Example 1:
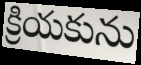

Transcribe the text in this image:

క్రియకును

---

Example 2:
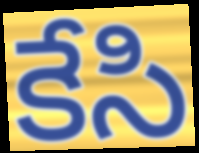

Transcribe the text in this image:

కేసి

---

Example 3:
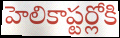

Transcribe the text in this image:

హెలికాప్టర్లోకి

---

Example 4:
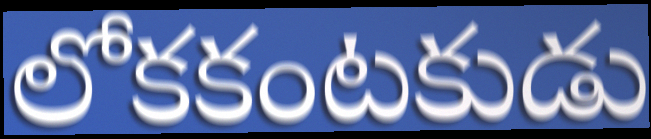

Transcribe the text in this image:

లోకకంటకుడు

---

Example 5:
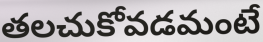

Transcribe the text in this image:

తలచుకోవడమంటే